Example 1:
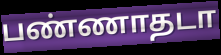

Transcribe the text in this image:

பண்ணாதடா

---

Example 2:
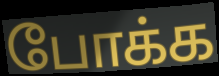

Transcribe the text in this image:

போக்க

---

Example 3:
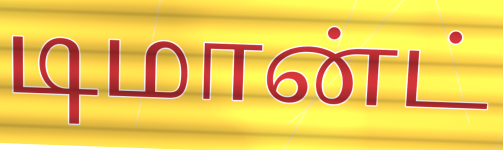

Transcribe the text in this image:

டிமான்ட்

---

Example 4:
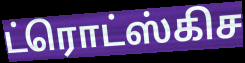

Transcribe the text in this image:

ட்ரொட்ஸ்கிச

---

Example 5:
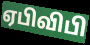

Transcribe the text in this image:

ஏபிவிபி